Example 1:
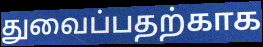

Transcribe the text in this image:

துவைப்பதற்காக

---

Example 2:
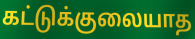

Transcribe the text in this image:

கட்டுக்குலையாத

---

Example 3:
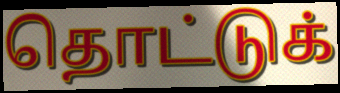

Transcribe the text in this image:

தொட்டுக்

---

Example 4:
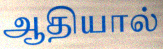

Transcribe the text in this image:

ஆதியால்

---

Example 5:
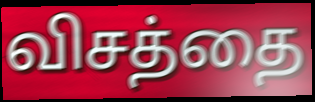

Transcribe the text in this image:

விசத்தை